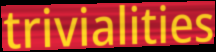
trivialities